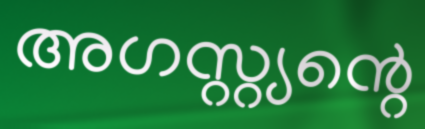
അഗസ്റ്റ്യന്റെ